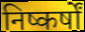
निष्कर्षों